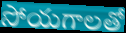
సోయగాలతో